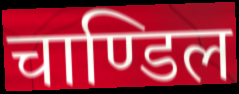
चाण्डिल